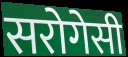
सरोगेसी